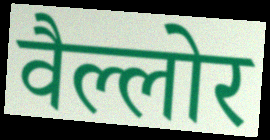
वैल्लोर